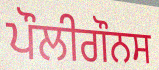
ਪੌਲੀਗੌਨਸ